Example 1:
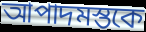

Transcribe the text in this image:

আপাদমস্তকে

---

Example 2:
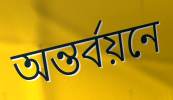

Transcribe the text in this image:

অন্তর্বয়নে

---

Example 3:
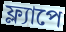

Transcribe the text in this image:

ফ্ল্যাপে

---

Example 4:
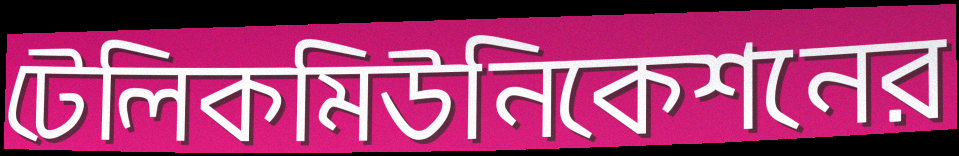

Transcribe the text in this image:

টেলিকমিউনিকেশনের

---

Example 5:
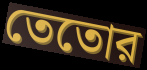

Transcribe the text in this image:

তেতোর